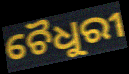
ଚୈଧୁରୀ